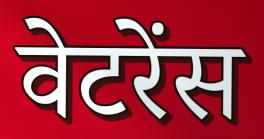
वेटरेंस